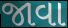
જાવા